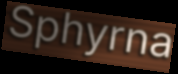
Sphyrna